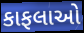
કાફલાઓ